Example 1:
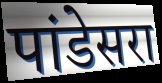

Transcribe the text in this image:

पांडेसरा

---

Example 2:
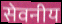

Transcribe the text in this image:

सेवनीय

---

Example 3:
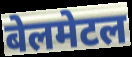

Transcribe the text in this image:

बेलमेटल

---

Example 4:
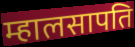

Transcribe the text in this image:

म्हालसापति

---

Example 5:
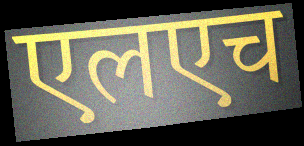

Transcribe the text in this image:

एलएच